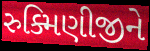
રુક્મિણીજીને